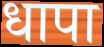
धापा